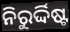
ନିରୁର୍ଦ୍ଦିଷ୍ଟ